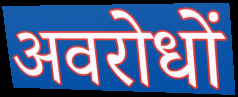
अवरोधों